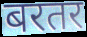
बरतर